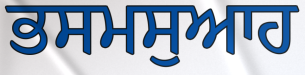
ਭਸਮਸੁਆਹ